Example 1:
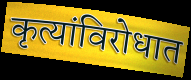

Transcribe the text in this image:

कृत्यांविरोधात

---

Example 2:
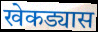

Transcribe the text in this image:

खेकड्यास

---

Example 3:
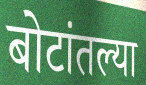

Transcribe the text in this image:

बोटांतल्या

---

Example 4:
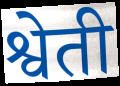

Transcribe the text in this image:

श्वेती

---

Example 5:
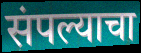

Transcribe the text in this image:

संपल्याचा